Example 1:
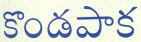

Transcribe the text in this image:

కొండపాక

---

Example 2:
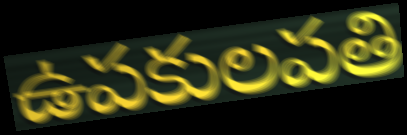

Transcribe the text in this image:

ఉపకులపతి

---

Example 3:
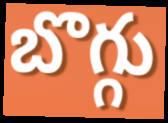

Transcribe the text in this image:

బొగ్గు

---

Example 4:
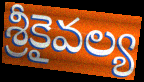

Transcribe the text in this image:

శ్రీకైవల్య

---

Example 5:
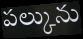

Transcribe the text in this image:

పల్కును